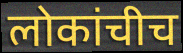
लोकांचीच